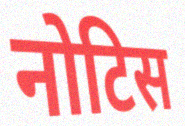
नोटिस